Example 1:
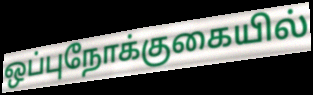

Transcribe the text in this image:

ஒப்புநோக்குகையில்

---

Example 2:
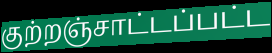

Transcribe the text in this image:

குற்றஞ்சாட்டப்பட்ட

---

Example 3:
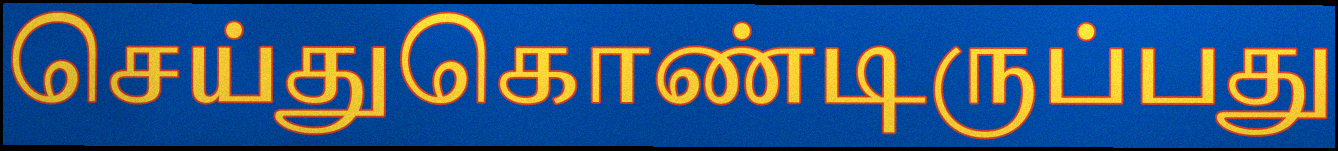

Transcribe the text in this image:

செய்துகொண்டிருப்பது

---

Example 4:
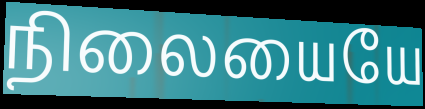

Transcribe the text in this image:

நிலையையே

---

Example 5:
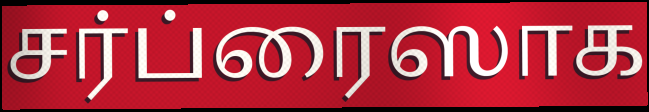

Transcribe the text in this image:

சர்ப்ரைஸாக